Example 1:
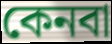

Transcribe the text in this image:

কেনবা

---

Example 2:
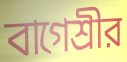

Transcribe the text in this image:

বাগেশ্রীর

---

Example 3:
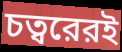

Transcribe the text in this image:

চত্বরেরই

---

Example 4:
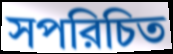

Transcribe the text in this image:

সপরিচিত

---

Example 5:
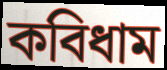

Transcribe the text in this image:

কবিধাম